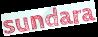
sundara